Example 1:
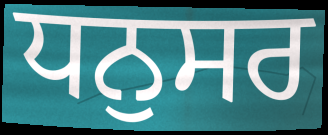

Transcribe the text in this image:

ਧਨੁਸਰ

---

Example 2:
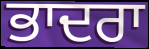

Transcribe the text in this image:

ਭਾਦਰਾ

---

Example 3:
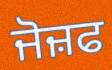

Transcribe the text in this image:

ਜੋਜ਼ਫ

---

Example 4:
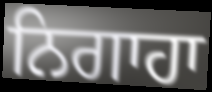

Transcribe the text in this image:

ਨਿਗਾਹਾ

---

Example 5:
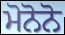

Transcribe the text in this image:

ਮੋਨੋਨੋ